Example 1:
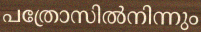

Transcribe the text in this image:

പത്രോസിൽനിന്നും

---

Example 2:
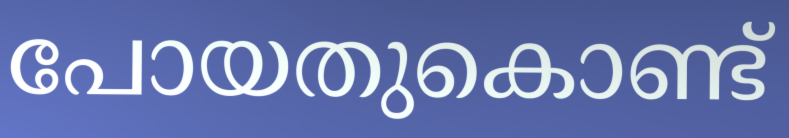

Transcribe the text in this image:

പോയതുകൊണ്ട്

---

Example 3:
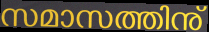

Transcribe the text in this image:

സമാസത്തിനു്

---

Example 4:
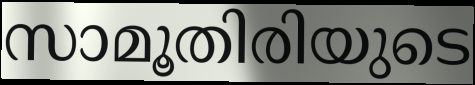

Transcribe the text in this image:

സാമൂതിരിയുടെ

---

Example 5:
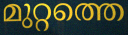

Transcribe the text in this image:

മുറ്റത്തെ